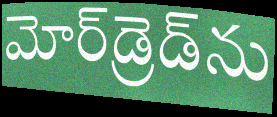
మోర్‌డ్రెడ్‌ను